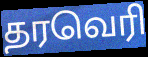
தரவெரி